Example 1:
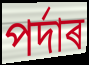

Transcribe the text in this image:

পৰ্দাৰ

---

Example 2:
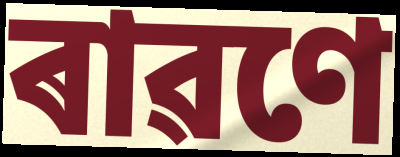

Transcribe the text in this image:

ৰাৱণে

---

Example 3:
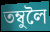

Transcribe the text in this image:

তম্বুলৈ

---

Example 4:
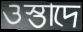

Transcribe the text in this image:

ওস্তাদে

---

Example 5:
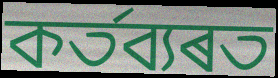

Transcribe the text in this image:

কৰ্তব্যৰত